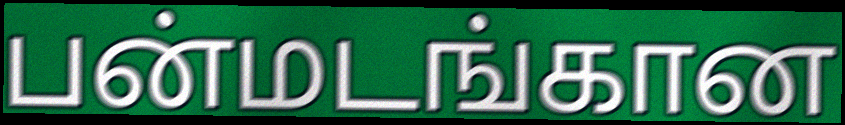
பன்மடங்கான